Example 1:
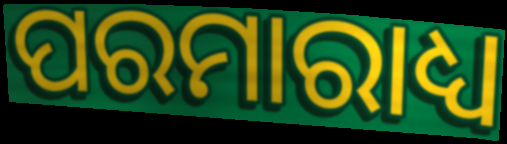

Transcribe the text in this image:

ପରମାରାଧ୍ୟ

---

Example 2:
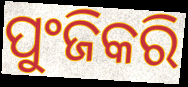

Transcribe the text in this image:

ପୁଂଜିକରି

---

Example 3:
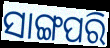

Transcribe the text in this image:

ସାଙ୍ଗପରି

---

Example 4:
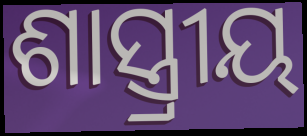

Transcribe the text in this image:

ଶାସ୍ତ୍ର୍ରୀୟ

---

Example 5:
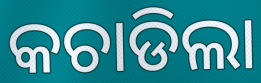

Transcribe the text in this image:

କଚାଡିଲା